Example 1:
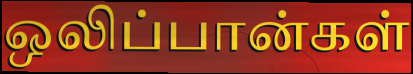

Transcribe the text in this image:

ஒலிப்பான்கள்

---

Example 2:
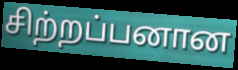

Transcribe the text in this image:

சிற்றப்பனான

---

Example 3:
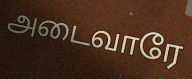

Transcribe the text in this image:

அடைவாரே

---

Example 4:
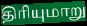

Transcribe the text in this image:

திரியுமாறு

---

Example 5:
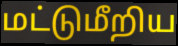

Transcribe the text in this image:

மட்டுமீறிய